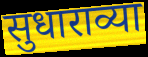
सुधाराव्या